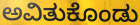
ಅವಿತುಕೊಂಡು